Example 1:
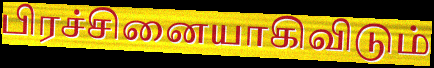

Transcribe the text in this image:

பிரச்சினையாகிவிடும்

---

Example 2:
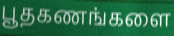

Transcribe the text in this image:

பூதகணங்களை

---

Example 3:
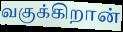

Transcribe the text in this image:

வகுக்கிறான்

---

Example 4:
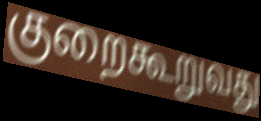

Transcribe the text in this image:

குறைகூறுவது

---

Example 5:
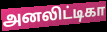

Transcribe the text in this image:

அனலிட்டிகா